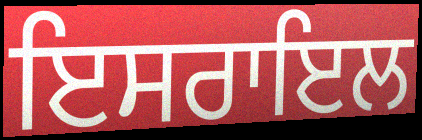
ਇਸਰਾਇਲ